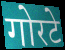
गोरटे